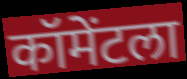
कॉमेंटला